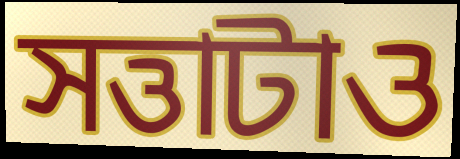
সত্তাটাও